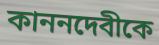
কাননদেবীকে